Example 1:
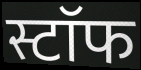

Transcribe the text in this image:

स्‍टॉफ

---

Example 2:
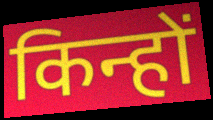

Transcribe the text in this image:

किन्हों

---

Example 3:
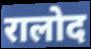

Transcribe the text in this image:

रालोद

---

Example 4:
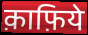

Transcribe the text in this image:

क़ाफ़िये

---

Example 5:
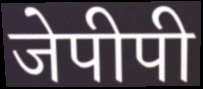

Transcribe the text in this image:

जेपीपी